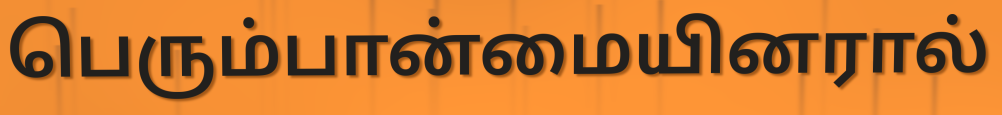
பெரும்பான்மையினரால்